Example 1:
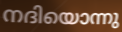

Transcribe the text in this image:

നദിയൊന്നു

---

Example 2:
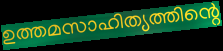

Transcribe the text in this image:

ഉത്തമസാഹിത്യത്തിന്റെ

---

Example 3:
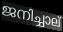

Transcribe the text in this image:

ജനിച്ചാല്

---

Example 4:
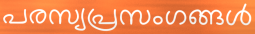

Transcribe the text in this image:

പരസ്യപ്രസംഗങ്ങൾ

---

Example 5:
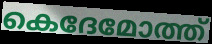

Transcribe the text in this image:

കെദേമോത്ത്